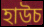
হাউচ